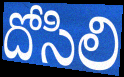
దోసిలి